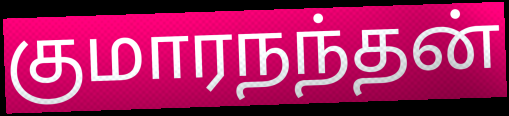
குமாரநந்தன்